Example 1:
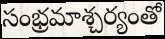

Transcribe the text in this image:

సంభ్రమాశ్చర్యంతో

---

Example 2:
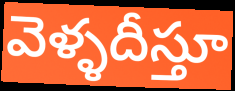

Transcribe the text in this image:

వెళ్ళదీస్తూ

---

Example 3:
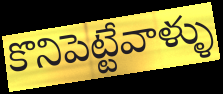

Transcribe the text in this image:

కొనిపెట్టేవాళ్ళు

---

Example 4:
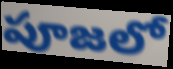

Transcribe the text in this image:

పూజలో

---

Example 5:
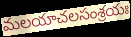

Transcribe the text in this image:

మలయాచలసంశ్రయః